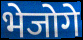
भेजोगे